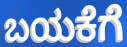
ಬಯಕೆಗೆ